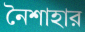
নৈশাহার